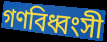
গণবিধ্বংসী